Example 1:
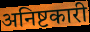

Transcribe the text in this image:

अनिष्टकारी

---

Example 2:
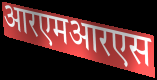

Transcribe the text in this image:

आरएमआरएस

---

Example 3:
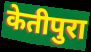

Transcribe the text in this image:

केतीपुरा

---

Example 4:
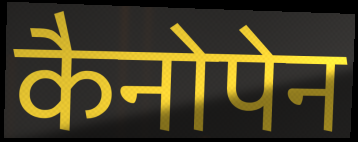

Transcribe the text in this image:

कैनोपेन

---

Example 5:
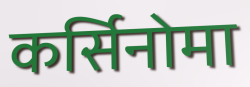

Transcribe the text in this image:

कर्सिनोमा